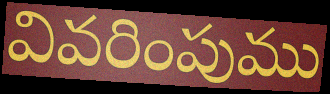
వివరింపుము